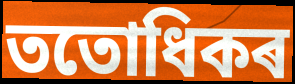
ততোধিকৰ